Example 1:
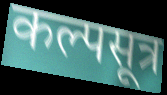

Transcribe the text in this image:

कल्पसूत्र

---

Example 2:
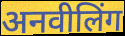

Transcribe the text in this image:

अनवीलिंग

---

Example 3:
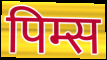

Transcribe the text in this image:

पिम्स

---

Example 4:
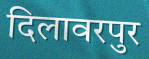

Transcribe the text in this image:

दिलावरपुर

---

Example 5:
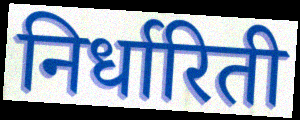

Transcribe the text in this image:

निर्धारिती